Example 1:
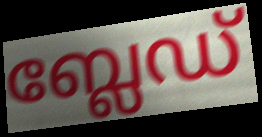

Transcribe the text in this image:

ബ്ലേഡ്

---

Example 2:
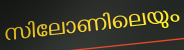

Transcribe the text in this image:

സിലോണിലെയും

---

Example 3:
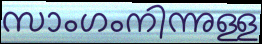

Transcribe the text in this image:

സാംഗംനിന്നുള്ള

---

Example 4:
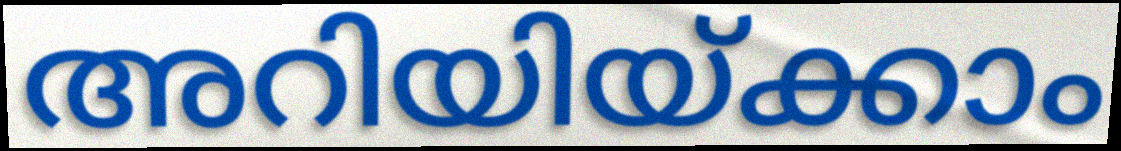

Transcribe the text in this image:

അറിയിയ്ക്കാം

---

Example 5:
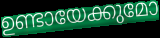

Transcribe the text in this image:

ഉണ്ടായേക്കുമോ